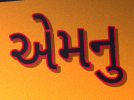
એમનુ